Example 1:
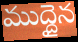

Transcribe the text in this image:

ముద్దైన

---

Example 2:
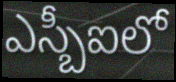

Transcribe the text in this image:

ఎస్బీఐలో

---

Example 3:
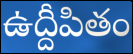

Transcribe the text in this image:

ఉద్దీపితం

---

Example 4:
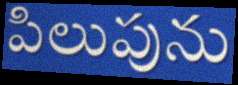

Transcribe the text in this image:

పిలుపును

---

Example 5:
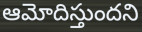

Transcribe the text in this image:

ఆమోదిస్తుందని